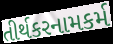
તીર્થકરનામકર્મ